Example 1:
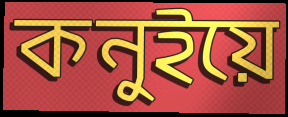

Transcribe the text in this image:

কনুইয়ে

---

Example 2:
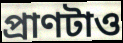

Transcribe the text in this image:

প্রাণটাও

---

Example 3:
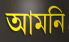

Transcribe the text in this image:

আমনি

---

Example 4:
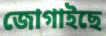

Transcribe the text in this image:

জোগাইছে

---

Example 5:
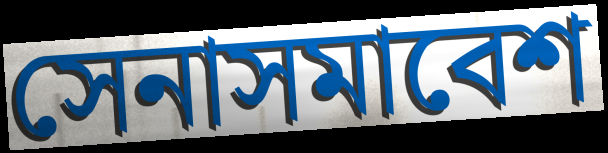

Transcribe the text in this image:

সেনাসমাবেশ